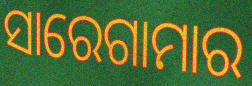
ସାରେଗାମାର